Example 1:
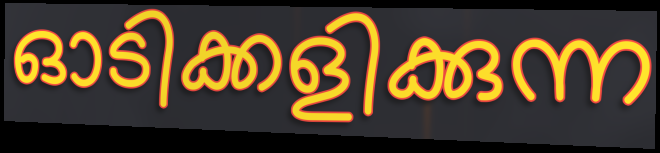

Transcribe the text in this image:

ഓടിക്കളിക്കുന്ന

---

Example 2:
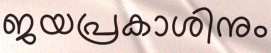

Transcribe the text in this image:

ജയപ്രകാശിനും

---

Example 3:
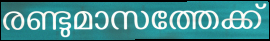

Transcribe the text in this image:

രണ്ടുമാസത്തേക്ക്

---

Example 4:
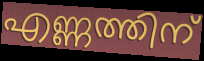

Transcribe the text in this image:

എണ്ണത്തിന്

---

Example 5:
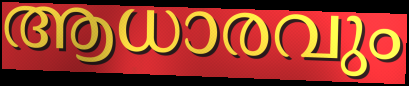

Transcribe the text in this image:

ആധാരവും